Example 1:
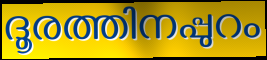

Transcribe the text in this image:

ദൂരത്തിനപ്പുറം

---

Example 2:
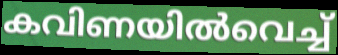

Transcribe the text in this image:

കവിണയിൽവെച്ച്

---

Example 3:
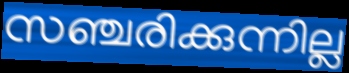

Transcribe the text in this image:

സഞ്ചരിക്കുന്നില്ല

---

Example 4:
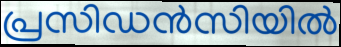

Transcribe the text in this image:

പ്രസിഡൻസിയിൽ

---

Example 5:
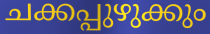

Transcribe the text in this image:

ചക്കപ്പുഴുക്കും